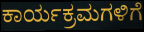
ಕಾರ್ಯಕ್ರಮಗಳಿಗೆ